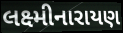
લક્ષ્મીનારાયણ